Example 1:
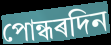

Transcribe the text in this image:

পোন্ধৰদিন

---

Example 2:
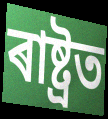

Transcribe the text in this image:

ৰাষ্ট্ৰত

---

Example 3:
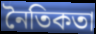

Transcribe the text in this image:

নৈতিকতা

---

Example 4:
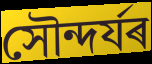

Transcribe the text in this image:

সৌন্দৰ্যৰ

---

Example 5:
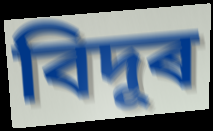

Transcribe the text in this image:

বিদূৰ